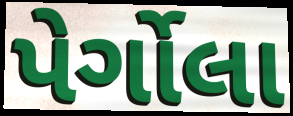
પેર્ગોલા